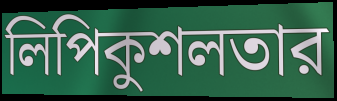
লিপিকুশলতার